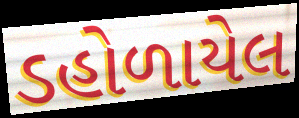
ડહોળાયેલ